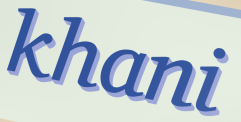
khani